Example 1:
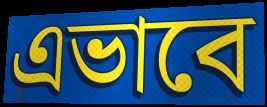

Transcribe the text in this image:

এভাবে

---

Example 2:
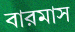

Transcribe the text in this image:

বারমাস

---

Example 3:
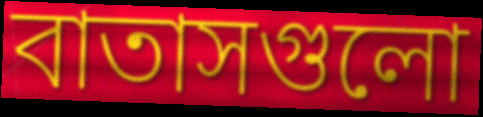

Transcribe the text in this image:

বাতাসগুলো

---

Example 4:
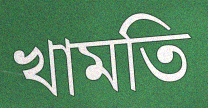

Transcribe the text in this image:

খামতি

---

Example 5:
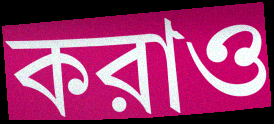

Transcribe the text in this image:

করাও